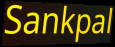
Sankpal